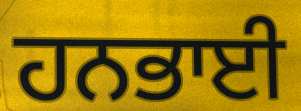
ਹਨਭਾਈ